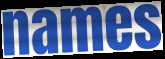
names